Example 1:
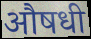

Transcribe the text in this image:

औषधी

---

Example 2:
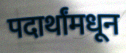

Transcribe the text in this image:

पदार्थांमधून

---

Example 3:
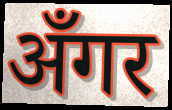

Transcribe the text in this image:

अँगर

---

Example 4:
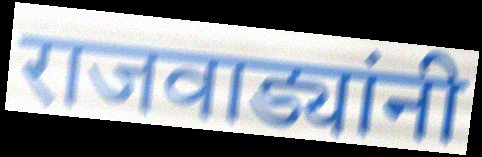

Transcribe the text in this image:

राजवाड्यांनी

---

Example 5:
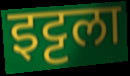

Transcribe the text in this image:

इट्टला